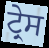
ਟ੍ਰੇਸ